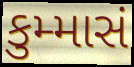
કુમ્માસં